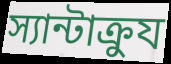
স্যান্টাক্রুয